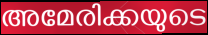
അമേരിക്കയുടെ